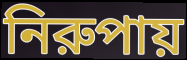
নিরুপায়